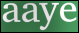
aaye